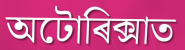
অটোৰিক্সাত